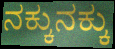
ನಕ್ಕುನಕ್ಕು